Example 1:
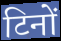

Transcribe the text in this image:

टिनों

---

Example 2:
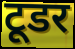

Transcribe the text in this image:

टूडर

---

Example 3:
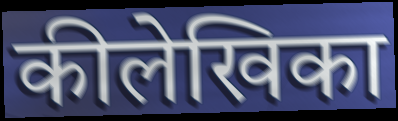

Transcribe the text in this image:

कीलेखिका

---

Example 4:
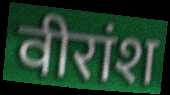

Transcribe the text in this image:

वीरांश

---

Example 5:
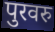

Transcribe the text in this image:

पुरवरु